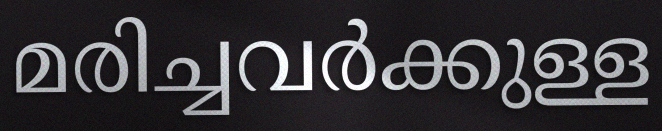
മരിച്ചവർക്കുള്ള